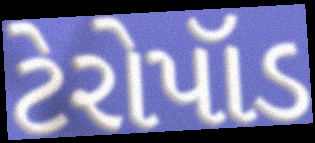
ટેરોપૉડ